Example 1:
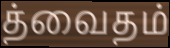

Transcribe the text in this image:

த்வைதம்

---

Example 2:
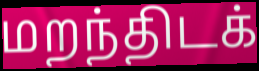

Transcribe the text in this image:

மறந்திடக்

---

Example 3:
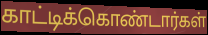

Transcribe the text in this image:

காட்டிக்கொண்டார்கள்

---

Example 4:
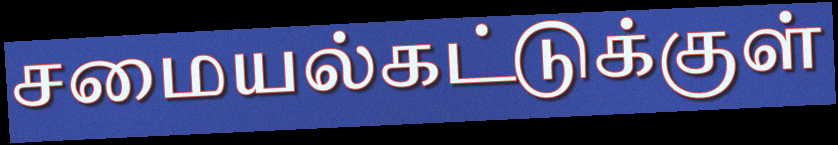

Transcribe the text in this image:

சமையல்கட்டுக்குள்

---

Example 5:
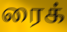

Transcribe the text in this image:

ரைக்